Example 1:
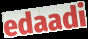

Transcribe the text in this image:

edaadi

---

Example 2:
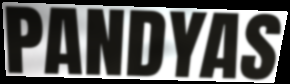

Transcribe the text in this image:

PANDYAS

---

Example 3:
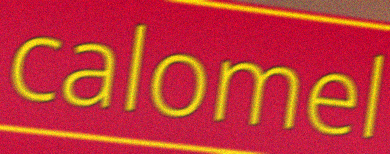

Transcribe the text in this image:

calomel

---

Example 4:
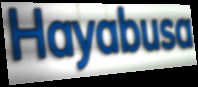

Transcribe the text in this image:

Hayabusa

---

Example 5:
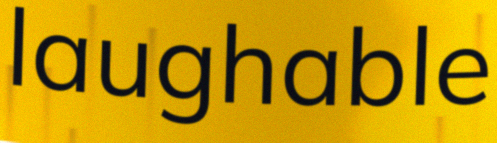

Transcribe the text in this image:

laughable